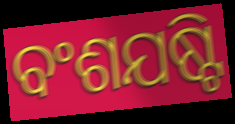
ବଂଶଯଷ୍ଟି